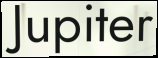
Jupiter